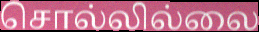
சொல்லில்லை